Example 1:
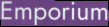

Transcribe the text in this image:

Emporium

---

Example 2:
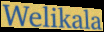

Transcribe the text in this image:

Welikala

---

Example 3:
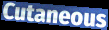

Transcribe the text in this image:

Cutaneous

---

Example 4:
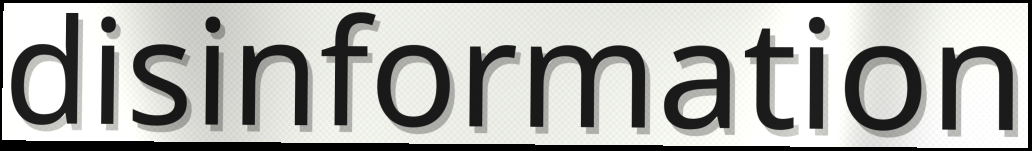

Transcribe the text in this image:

disinformation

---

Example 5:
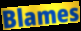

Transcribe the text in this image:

Blames